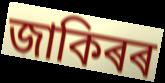
জাকিৰৰ